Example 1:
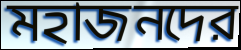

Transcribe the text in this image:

মহাজনদের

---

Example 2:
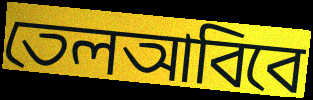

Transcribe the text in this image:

তেলআবিবে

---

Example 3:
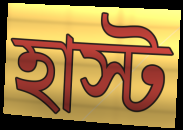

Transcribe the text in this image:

হাস্ট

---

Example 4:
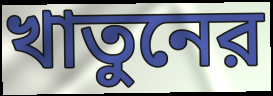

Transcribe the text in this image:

খাতুনের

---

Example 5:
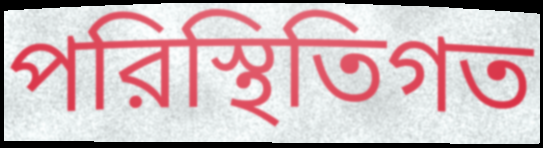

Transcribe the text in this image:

পরিস্থিতিগত